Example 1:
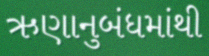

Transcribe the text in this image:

ઋણાનુબંધમાંથી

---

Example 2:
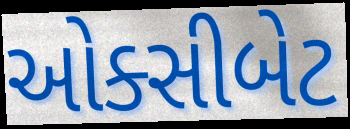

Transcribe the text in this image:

ઓક્સીબેટ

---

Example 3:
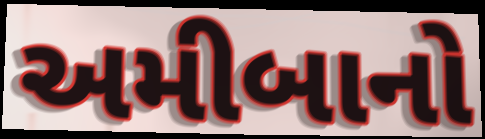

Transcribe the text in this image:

અમીબાનો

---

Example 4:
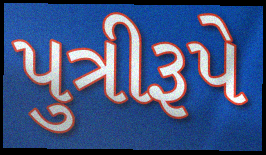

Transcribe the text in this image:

પુત્રીરૂપે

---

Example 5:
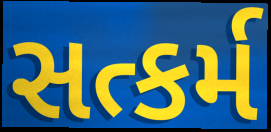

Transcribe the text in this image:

સત્કર્મ